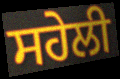
ਸਹੇਲੀ